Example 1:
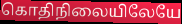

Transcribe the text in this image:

கொதிநிலையிலேயே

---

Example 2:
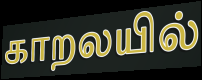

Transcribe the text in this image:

காறலயில்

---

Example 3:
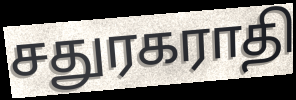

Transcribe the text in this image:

சதுரகராதி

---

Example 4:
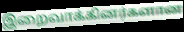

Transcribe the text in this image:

இறைவாக்கினர்களான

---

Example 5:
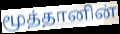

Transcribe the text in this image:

மூத்தானின்